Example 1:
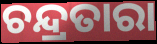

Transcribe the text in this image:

ଚନ୍ଦ୍ରତାରା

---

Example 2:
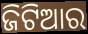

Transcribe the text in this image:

ଜିଟିଆର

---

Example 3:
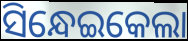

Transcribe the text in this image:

ସିନ୍ଧେଇକେଲା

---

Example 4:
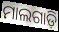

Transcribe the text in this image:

ମାଲଗାଡ଼ି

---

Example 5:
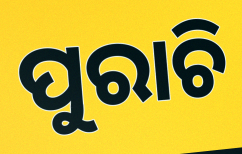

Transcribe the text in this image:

ପୁରାଚି